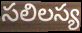
సలిలస్య